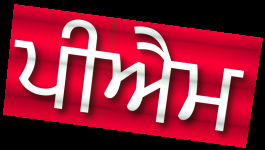
ਪੀਐਮ